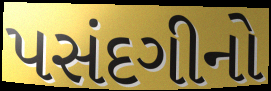
પસંદગીનો